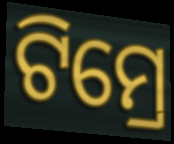
ଟିମ୍ରେ